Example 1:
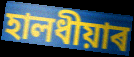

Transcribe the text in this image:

হালধীয়াৰ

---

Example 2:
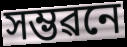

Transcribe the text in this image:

সম্ভৱনে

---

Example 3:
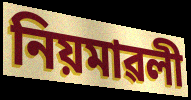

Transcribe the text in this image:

নিয়মাৱলী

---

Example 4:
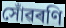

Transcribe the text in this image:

সোঁৱৰণি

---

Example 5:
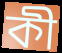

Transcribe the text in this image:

কী